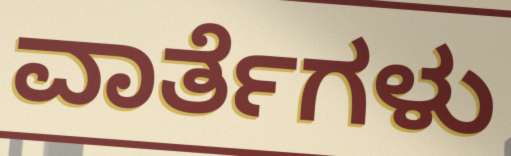
ವಾರ್ತೆಗಳು